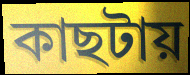
কাছটায়